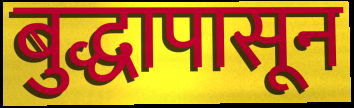
बुद्धापासून